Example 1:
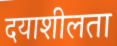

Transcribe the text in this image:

दयाशीलता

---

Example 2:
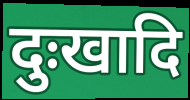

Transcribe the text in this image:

दुःखादि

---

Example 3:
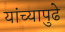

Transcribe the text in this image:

यांच्यापुढे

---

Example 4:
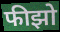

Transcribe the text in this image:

फीझो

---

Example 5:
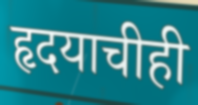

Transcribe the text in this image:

हृदयाचीही